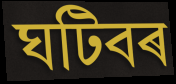
ঘটিবৰ